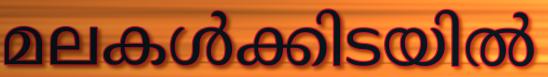
മലകൾക്കിടയിൽ